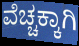
ವೆಚ್ಚಕ್ಕಾಗಿ